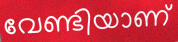
വേണ്ടിയാണ്